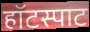
हॉटस्पाट